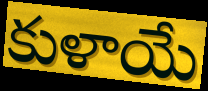
కుళాయే